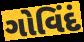
ગોવિંદં